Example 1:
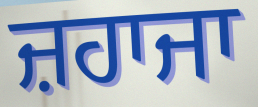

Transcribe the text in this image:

ਜ਼ਹਾਜਾ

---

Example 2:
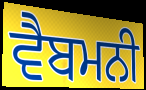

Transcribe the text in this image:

ਵੈਬਮਨੀ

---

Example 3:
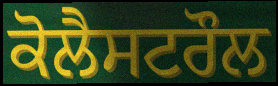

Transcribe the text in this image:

ਕੋਲੈਸਟਰੌਲ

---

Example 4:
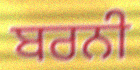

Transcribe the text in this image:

ਬਰਨੀ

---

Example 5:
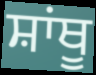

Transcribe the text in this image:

ਸ਼ਾਂਥੂ